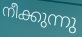
നീക്കുന്നു